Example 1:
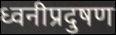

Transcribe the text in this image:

ध्वनीप्रदुषण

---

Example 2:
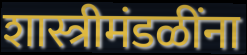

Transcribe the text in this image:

शास्त्रीमंडळींना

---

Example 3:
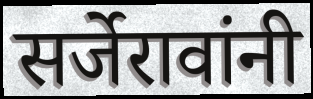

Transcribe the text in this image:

सर्जेरावांनी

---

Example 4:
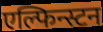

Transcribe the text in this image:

एल्फिन्स्टन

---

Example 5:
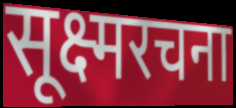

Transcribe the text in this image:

सूक्ष्मरचना